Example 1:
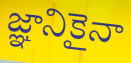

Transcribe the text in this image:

జ్ఞానికైనా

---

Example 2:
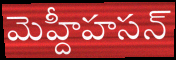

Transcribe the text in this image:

మెహ్దీహసన్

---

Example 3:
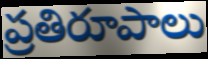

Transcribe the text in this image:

ప్రతిరూపాలు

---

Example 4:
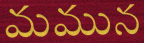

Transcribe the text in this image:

మమున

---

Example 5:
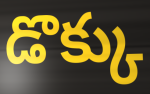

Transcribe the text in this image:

డొక్కు